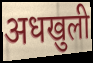
अधखुली